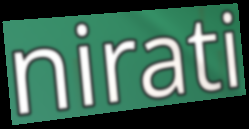
nirati